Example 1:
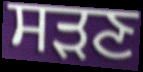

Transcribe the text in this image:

ਸੜਣ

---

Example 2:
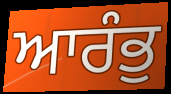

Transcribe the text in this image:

ਆਰੰਭੁ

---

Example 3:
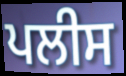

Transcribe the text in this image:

ਪਲੀਸ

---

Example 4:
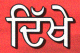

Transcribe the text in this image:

ਦਿੱਖੇ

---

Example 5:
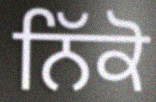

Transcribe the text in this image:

ਨਿੱਕੋ